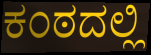
ಕಂಠದಲ್ಲಿ